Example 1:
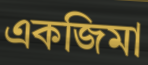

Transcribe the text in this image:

একজিমা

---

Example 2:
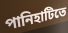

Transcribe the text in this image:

পানিহাটিতে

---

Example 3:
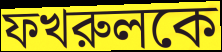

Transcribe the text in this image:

ফখরুলকে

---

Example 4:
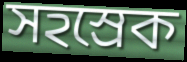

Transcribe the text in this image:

সহস্রেক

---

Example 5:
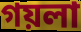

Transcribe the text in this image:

গয়লা